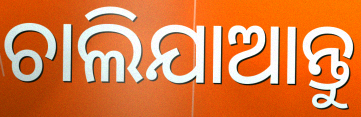
ଚାଲିଯାଆନ୍ତୁ